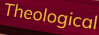
Theological